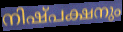
നിഷ്പക്ഷനും